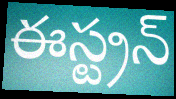
ఈస్ట్రన్